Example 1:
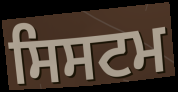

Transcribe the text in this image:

ਸਿਸਟਮ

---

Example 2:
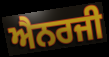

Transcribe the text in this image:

ਐਨਰਜੀ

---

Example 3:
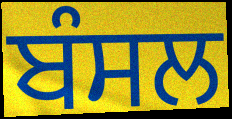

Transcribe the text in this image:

ਬੰਸਲ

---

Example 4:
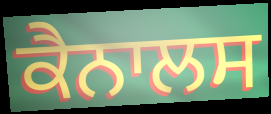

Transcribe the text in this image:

ਕੈਨਾਲਸ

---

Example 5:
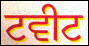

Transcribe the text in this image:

ਟਵੀਟ